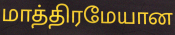
மாத்திரமேயான